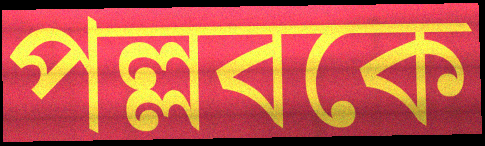
পল্লবকে